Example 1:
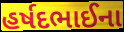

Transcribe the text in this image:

હર્ષદભાઈના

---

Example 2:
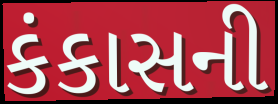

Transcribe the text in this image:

કંકાસની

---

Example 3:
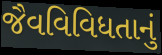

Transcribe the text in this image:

જૈવવિવિધતાનું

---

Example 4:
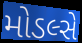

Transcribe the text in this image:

મોડલ્સે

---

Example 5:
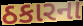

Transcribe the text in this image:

ઠકારના